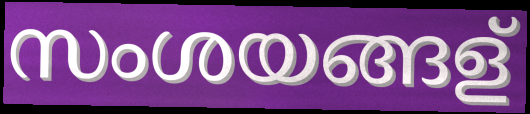
സംശയങ്ങള്